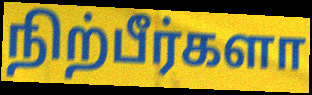
நிற்பீர்களா